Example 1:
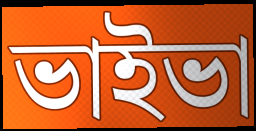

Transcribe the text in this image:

ভাইভা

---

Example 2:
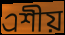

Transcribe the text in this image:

এশীয়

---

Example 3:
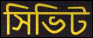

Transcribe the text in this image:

সিভিট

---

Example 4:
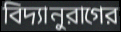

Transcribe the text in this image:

বিদ্যানুরাগের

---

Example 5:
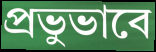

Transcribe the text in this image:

প্রভুভাবে